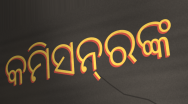
କମିସନ୍‍ରଙ୍କ